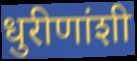
धुरीणांशी